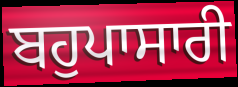
ਬਹੁਪਾਸਾਰੀ